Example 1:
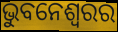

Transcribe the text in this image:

ଭୁବନେଶ୍ୱରର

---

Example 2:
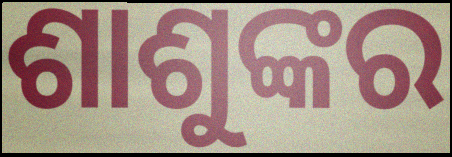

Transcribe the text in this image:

ଶାଶୁଙ୍କର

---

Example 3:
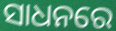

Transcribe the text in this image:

ସାଧନରେ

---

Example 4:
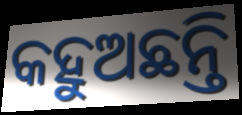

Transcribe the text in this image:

କହୁଅଛନ୍ତି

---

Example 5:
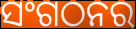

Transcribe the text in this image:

ସଂଗଠନର